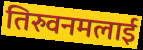
तिरुवनमलाई